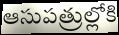
ఆసుపత్రుల్లోకి